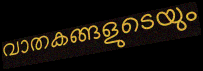
വാതകങ്ങളുടെയും